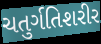
ચતુર્ગતિશરીર